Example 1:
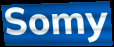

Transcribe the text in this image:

Somy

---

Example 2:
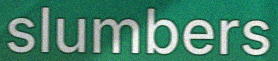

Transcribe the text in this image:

slumbers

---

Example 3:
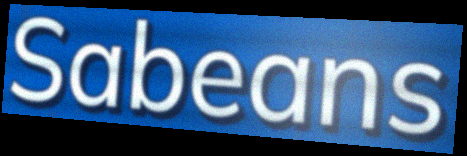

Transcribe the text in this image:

Sabeans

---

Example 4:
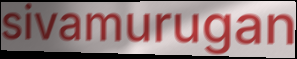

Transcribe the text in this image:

sivamurugan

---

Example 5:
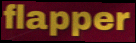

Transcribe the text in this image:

flapper